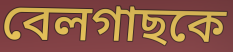
বেলগাছকে